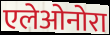
एलेओनोरा